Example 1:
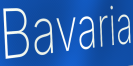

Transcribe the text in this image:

Bavaria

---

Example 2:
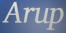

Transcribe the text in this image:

Arup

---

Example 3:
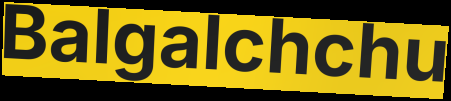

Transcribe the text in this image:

Balgalchchu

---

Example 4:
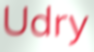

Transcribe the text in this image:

Udry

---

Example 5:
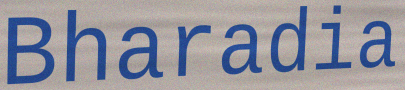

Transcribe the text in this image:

Bharadia